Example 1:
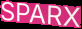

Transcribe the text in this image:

SPARX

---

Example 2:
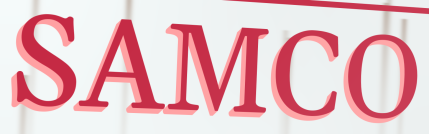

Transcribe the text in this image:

SAMCO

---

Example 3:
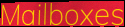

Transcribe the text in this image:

Mailboxes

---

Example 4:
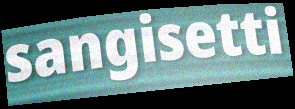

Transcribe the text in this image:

sangisetti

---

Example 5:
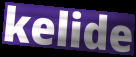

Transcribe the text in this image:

kelide